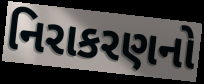
નિરાકરણનો